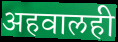
अहवालही